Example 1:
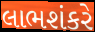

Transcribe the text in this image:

લાભશંકરે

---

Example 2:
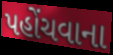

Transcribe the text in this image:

પહોંચવાના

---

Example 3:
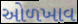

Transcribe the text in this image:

ઓળખાવ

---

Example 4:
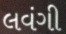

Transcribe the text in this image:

લવંગી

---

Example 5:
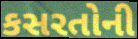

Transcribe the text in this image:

કસરતોની